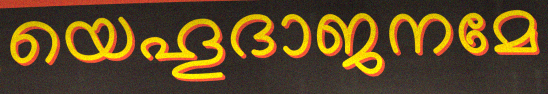
യെഹൂദാജനമേ